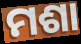
ମଶା